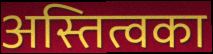
अस्तित्वका